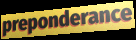
preponderance